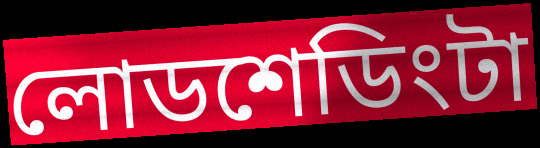
লোডশেডিংটা